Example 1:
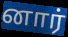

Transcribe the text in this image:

னார்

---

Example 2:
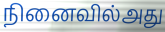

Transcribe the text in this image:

நினைவில்அது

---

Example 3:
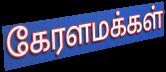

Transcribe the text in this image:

கேரளமக்கள்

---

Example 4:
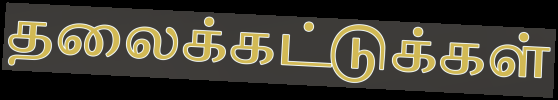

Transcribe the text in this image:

தலைக்கட்டுக்கள்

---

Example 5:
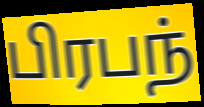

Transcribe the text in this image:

பிரபந்